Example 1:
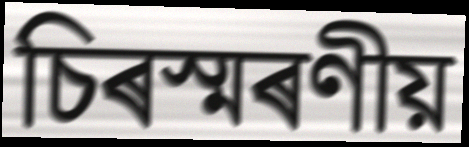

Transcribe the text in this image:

চিৰস্মৰণীয়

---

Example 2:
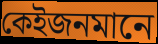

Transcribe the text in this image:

কেইজনমানে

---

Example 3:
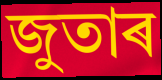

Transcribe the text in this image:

জুতাৰ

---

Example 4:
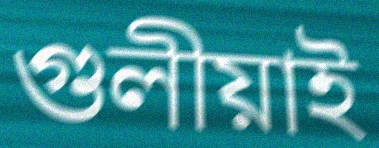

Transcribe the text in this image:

গুলীয়াই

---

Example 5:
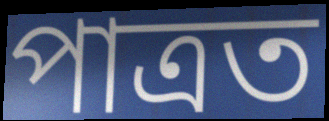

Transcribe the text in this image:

পাত্ৰত